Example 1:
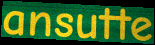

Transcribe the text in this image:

ansutte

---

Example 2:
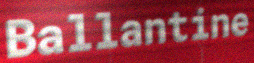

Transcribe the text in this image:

Ballantine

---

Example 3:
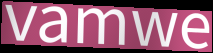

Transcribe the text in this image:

vamwe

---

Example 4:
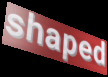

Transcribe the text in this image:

shaped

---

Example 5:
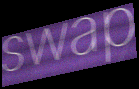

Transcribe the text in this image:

swap